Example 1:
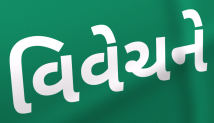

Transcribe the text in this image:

વિવેચને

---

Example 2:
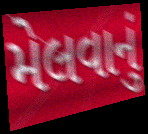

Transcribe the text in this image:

મેલવાનું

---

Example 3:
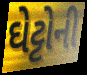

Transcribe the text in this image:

ઘેટ્ટોની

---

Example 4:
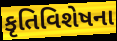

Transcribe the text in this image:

કૃતિવિશેષના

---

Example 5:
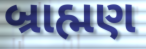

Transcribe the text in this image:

બ્રાહ્મણ